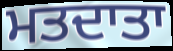
ਮਤਦਾਤਾ